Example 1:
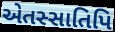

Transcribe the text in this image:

એતસ્સાતિપિ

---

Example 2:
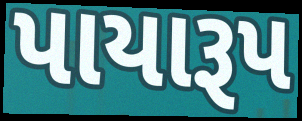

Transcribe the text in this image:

પાયારૂપ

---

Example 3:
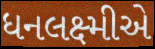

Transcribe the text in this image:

ધનલક્ષ્મીએ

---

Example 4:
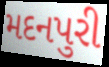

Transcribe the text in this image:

મદનપુરી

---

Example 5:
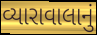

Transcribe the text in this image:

વ્યારાવાલાનું